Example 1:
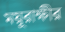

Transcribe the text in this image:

ময়ূরাক্ষীর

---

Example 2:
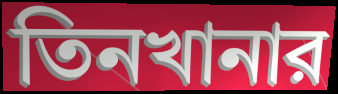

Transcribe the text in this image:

তিনখানার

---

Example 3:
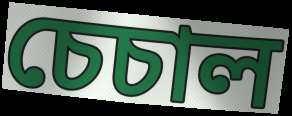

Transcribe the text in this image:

চেচাল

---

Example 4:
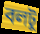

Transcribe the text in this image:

বলটু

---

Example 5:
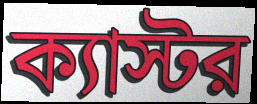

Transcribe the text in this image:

ক্যাস্টর